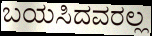
ಬಯಸಿದವರಲ್ಲ